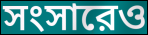
সংসারেও